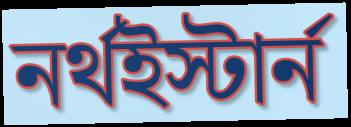
নর্থইস্টার্ন